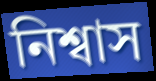
নিশ্বাস